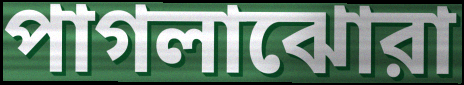
পাগলাঝোরা